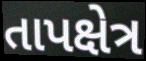
તાપક્ષેત્ર